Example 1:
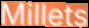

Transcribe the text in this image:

Millets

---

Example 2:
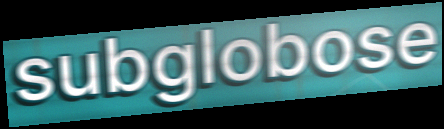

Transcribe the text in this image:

subglobose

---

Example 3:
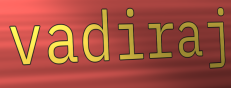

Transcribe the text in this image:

vadiraj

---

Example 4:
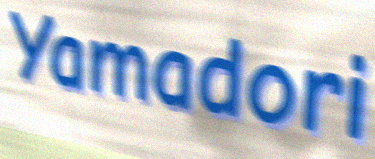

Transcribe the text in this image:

Yamadori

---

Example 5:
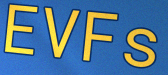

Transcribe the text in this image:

EVFs